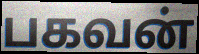
பகவன்